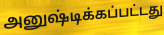
அனுஷ்டிக்கப்பட்டது